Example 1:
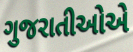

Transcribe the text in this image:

ગુજરાતીઓએ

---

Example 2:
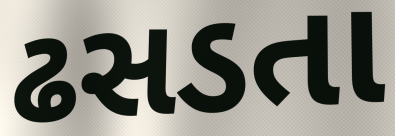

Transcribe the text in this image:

ઢસડતા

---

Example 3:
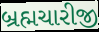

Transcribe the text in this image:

બ્રહ્મચારીજી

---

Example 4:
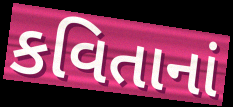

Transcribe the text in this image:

કવિતાનાં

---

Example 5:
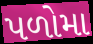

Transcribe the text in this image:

પળોમા